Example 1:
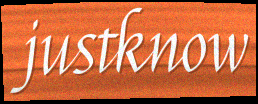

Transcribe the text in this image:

justknow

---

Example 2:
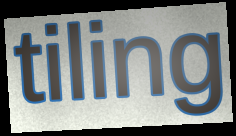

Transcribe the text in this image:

tiling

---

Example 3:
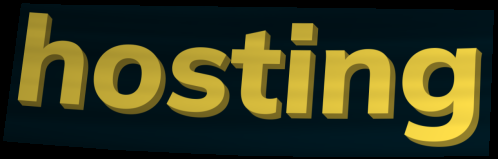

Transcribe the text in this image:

hosting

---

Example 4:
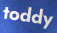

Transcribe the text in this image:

toddy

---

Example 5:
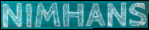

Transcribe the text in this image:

NIMHANS